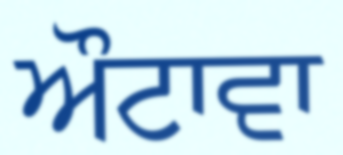
ਔਟਾਵਾ